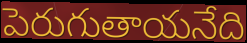
పెరుగుతాయనేది